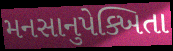
મનસાનુપેક્ખિતા